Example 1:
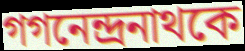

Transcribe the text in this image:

গগনেন্দ্রনাথকে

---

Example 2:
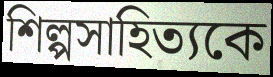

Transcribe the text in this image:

শিল্পসাহিত্যকে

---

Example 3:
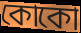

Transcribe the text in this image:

কোকো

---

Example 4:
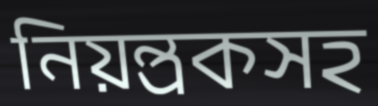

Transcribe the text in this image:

নিয়ন্ত্রকসহ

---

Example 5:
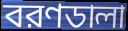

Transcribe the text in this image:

বরণডালা